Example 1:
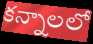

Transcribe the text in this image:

కన్నాలలో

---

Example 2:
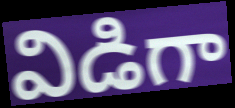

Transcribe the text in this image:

విడిగా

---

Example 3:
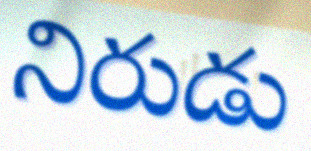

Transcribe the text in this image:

నిరుడు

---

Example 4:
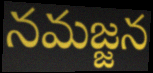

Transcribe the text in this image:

నమజ్జన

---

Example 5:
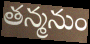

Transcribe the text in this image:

తన్మనుం